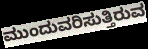
ಮುಂದುವರಿಸುತ್ತಿರುವ